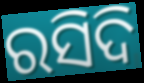
ରସିଦି